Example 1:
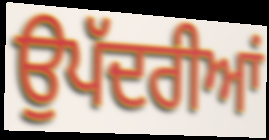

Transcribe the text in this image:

ਉਪੱਦਰੀਆਂ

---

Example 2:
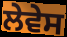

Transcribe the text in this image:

ਲੇਵੇਸ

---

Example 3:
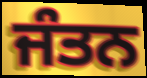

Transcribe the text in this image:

ਜੰਤਨ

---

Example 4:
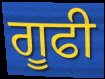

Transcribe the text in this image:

ਗੂਫੀ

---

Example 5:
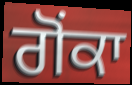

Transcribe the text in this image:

ਗੋਂਕਾ